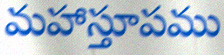
మహాస్తూపము